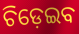
ଚିଡ଼େଇବ